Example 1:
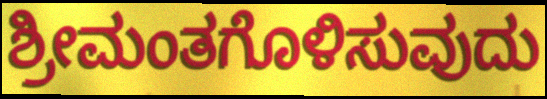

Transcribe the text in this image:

ಶ್ರೀಮಂತಗೊಳಿಸುವುದು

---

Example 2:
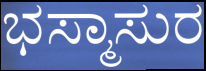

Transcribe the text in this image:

ಭಸ್ಮಾಸುರ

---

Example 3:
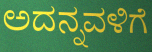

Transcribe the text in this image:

ಅದನ್ನವಳಿಗೆ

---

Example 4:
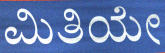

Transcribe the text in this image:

ಮಿತಿಯೇ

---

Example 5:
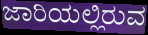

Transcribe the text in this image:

ಜಾರಿಯಲ್ಲಿರುವ